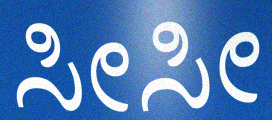
ಸೀಸೀ